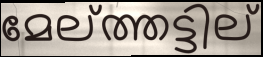
മേല്ത്തട്ടില്